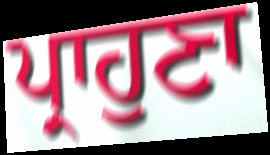
ਪ੍ਰਾਹੁਣਾ